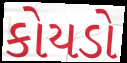
કોયડો